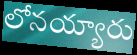
లోనయ్యారు